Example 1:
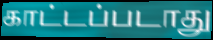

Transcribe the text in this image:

காட்டப்படாது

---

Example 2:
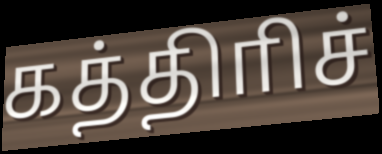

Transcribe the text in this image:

கத்திரிச்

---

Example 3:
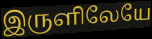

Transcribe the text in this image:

இருளிலேயே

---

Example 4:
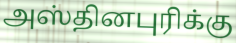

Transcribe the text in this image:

அஸ்தினபுரிக்கு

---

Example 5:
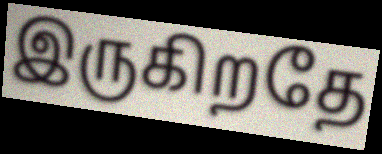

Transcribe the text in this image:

இருகிறதே